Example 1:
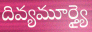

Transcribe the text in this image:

దివ్యమూర్త్యై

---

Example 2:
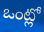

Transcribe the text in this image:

ఒంట్లో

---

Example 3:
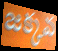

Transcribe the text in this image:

జక్కవ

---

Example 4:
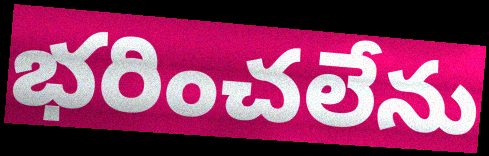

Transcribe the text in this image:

భరించలేను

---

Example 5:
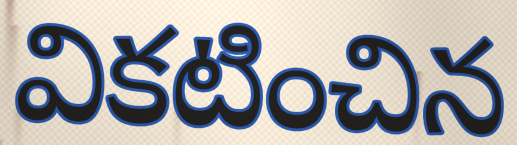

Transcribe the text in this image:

వికటించిన